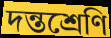
দন্তশ্রেণি